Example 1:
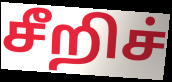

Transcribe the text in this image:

சீறிச்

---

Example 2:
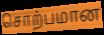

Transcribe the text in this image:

சொற்பமான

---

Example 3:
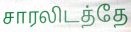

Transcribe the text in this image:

சாரலிடத்தே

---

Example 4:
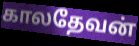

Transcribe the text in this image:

காலதேவன்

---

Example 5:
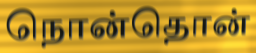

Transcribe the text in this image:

நொன்தொன்